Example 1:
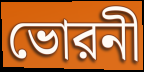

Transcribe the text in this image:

ভোরনী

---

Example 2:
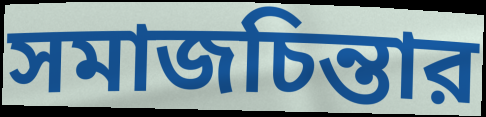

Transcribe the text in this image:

সমাজচিন্তার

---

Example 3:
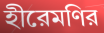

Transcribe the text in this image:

হীরেমণির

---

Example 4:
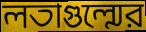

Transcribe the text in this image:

লতাগুল্মের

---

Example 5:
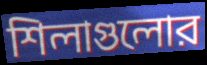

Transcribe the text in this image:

শিলাগুলোর